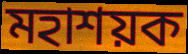
মহাশয়ক